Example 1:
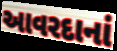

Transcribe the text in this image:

આવરદાનાં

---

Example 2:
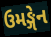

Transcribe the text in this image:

ઉમઙ્ગેન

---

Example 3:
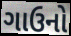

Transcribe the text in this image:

ગાઉનો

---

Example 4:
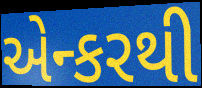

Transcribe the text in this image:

એન્કરથી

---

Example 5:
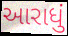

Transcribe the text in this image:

આરાધું